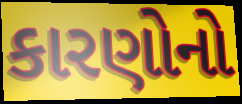
કારણોનો